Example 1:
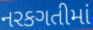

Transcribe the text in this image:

નરકગતીમાં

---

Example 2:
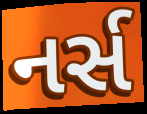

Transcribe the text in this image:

નર્સ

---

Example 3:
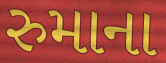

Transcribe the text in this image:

રુમાના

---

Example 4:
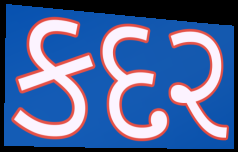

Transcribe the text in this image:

કદર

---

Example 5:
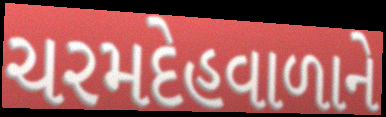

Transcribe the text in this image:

ચરમદેહવાળાને